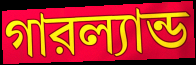
গারল্যান্ড